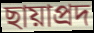
ছায়াপ্রদ